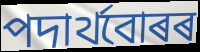
পদাৰ্থবোৰৰ